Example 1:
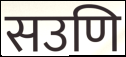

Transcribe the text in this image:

सउणि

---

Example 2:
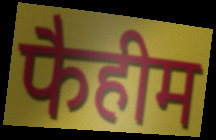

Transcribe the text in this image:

फैहीम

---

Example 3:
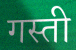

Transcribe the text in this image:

गस्ती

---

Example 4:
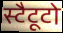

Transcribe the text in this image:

स्टैटूटो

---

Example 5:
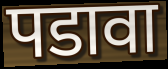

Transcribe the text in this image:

पडावा